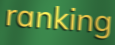
ranking